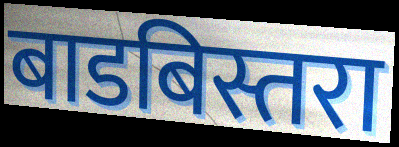
बाडबिस्तरा